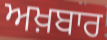
ਅਖ਼ਬਾਰ